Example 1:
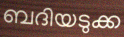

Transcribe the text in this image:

ബദിയടുക്ക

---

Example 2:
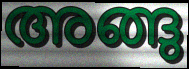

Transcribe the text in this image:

അങ്ങു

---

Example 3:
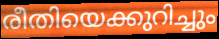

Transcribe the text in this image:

രീതിയെക്കുറിച്ചും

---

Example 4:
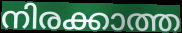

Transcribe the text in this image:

നിരക്കാത്ത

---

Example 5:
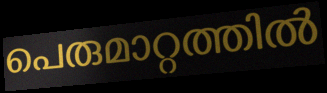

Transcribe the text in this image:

പെരുമാറ്റത്തിൽ